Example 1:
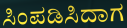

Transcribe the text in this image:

ಸಿಂಪಡಿಸಿದಾಗ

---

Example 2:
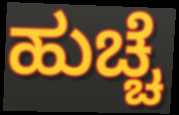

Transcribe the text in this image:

ಹುಚ್ಚೆ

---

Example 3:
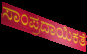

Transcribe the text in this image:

ಸಾಂಪ್ರದಾಯಿಕತೆ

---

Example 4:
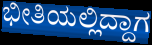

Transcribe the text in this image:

ಭೀತಿಯಲ್ಲಿದ್ದಾಗ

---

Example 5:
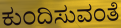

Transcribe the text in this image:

ಕುಂದಿಸುವಂತೆ